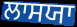
ਲਾਸਯਾ